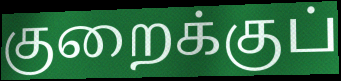
குறைக்குப்